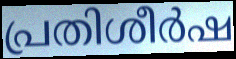
പ്രതിശീർഷ